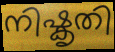
നിഷ്കൃതി